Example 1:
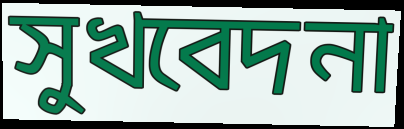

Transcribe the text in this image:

সুখবেদনা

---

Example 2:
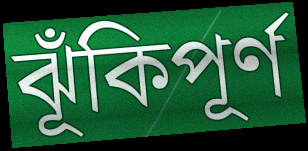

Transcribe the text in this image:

ঝূঁকিপূর্ণ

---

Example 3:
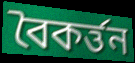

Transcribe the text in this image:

বৈকর্ত্তন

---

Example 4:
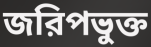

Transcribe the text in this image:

জরিপভুক্ত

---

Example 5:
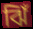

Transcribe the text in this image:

ঝিঁ